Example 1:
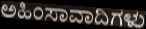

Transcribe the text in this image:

ಅಹಿಂಸಾವಾದಿಗಳು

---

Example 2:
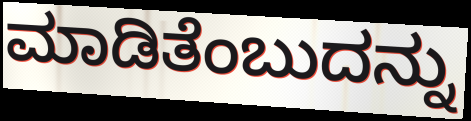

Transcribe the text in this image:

ಮಾಡಿತೆಂಬುದನ್ನು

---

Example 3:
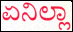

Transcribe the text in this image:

ಏನಿಲ್ಲಾ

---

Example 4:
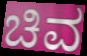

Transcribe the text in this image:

ಚಿವ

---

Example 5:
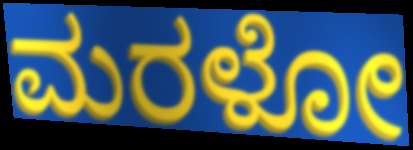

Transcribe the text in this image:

ಮರಳೋ